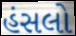
હંસલો